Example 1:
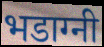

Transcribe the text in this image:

भडाग्नी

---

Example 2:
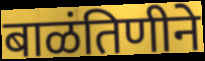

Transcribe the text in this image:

बाळंतिणीने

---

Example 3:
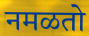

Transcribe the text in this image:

नमळतो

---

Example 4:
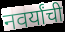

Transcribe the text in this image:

नवर्यांची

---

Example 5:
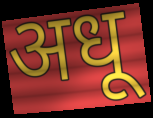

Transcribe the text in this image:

अधू